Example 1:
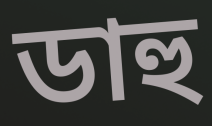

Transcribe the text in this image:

ডাহু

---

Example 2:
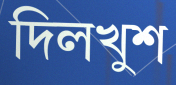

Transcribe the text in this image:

দিলখুশ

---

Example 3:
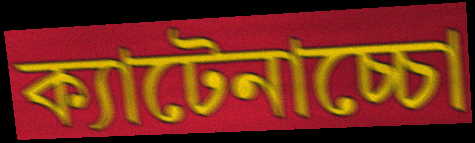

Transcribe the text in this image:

ক্যাটেনাচ্চো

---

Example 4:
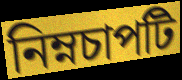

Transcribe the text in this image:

নিম্নচাপটি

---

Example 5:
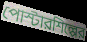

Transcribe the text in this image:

পোস্টারশিল্পের